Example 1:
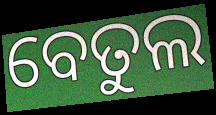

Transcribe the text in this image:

ବେତୁଲ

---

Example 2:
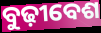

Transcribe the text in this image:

ବୁଢ଼ୀବେଶ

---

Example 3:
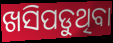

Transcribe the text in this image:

ଖସିପଡୁଥିବା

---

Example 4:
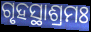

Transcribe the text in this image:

ଗୃହସ୍ଥାଶ୍ରମଃ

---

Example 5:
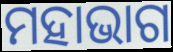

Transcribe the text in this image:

ମହାଭାଗ